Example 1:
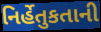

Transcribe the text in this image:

નિર્હેતુકતાની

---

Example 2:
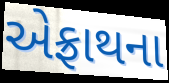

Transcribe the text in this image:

એફ્રાથના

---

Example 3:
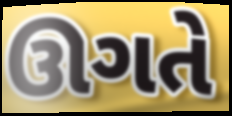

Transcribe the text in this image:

ઊગતે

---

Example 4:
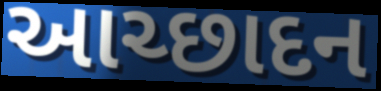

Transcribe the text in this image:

આચ્છાદન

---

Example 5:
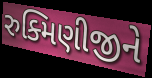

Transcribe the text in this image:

રુક્મિણીજીને